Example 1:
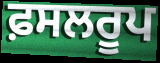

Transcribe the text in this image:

ਫ਼ਸਲਰੂਪ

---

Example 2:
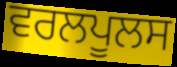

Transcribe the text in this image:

ਵਰਲਪੂਲਸ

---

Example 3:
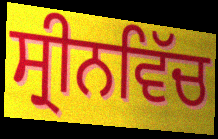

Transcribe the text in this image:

ਸ੍ਰੀਨਵਿੱਚ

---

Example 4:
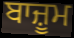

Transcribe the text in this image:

ਬਾਜ਼ੂਮ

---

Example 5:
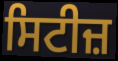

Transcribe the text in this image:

ਸਿਟੀਜ਼